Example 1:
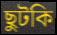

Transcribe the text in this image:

ছুটকি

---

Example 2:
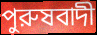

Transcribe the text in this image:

পুরুষবাদী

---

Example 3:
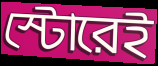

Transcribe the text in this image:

স্টোরেই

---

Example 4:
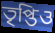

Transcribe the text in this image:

তৃপ্তিও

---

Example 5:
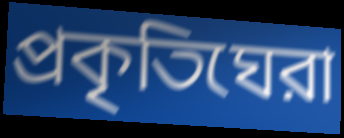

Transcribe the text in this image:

প্রকৃতিঘেরা